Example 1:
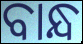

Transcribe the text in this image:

ବାନ୍ଧ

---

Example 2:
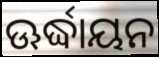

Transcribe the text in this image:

ଊର୍ଦ୍ଧାୟନ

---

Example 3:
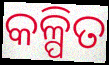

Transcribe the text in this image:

କଳ୍ପିତ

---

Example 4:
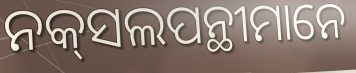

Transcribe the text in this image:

ନକ୍‌ସଲପନ୍ଥୀମାନେ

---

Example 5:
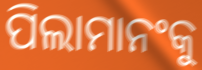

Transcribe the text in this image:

ପିଲାମାନଂକୁ